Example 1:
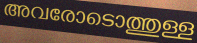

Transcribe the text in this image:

അവരോടൊത്തുള്ള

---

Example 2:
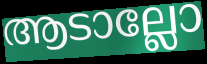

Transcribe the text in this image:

ആടാല്ലോ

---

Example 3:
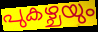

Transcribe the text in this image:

പുകഴ്ചയും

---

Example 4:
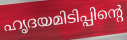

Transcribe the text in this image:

ഹൃദയമിടിപ്പിന്റെ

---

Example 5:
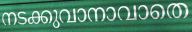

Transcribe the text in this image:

നടക്കുവാനാവാതെ